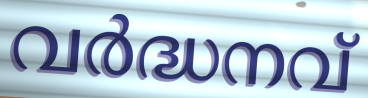
വർദ്ധനവ്